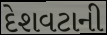
દેશવટાની